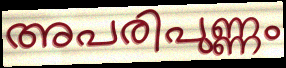
അപരിപുണ്ണം